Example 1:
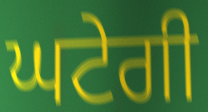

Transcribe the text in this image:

ਘਟੇਗੀ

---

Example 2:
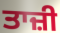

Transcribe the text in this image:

ਤਾਜ਼ੀ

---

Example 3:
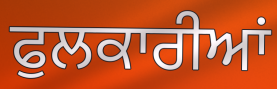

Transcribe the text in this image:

ਫੁਲਕਾਰੀਆਂ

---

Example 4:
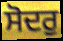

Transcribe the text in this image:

ਸੋਦਰੁ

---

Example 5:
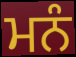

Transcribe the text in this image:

ਮਨੰ